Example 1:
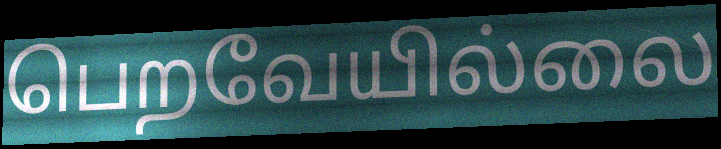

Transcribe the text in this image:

பெறவேயில்லை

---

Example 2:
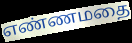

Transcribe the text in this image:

எண்ணமதை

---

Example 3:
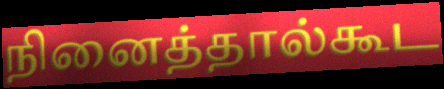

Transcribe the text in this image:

நினைத்தால்கூட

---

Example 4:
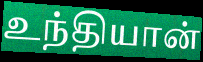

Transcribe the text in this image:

உந்தியான்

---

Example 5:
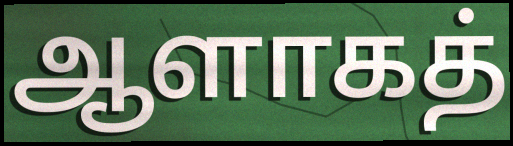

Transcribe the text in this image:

ஆளாகத்